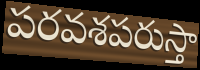
పరవశపరుస్తా